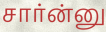
சார்ன்னு